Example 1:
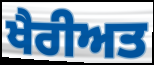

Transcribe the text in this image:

ਖੈਰੀਅਤ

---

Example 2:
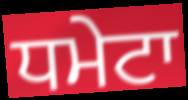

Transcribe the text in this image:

ਧਮੇਟਾ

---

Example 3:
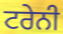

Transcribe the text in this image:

ਟਰੇਨੀ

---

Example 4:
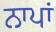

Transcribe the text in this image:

ਨਾਪਾਂ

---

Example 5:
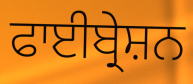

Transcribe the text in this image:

ਫਾਈਬ੍ਰੇਸ਼ਨ